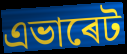
এভাৰেট